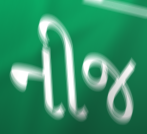
નીજ